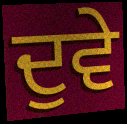
ਦੁਵੇ